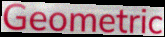
Geometric